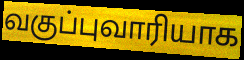
வகுப்புவாரியாக